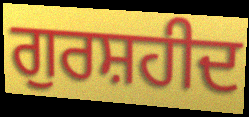
ਗੁਰਸ਼ਹੀਦ